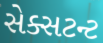
સેક્સટન્ટ